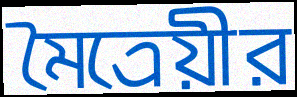
মৈত্রেয়ীর